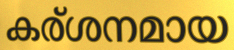
കര്ശനമായ